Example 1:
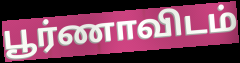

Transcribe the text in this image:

பூர்ணாவிடம்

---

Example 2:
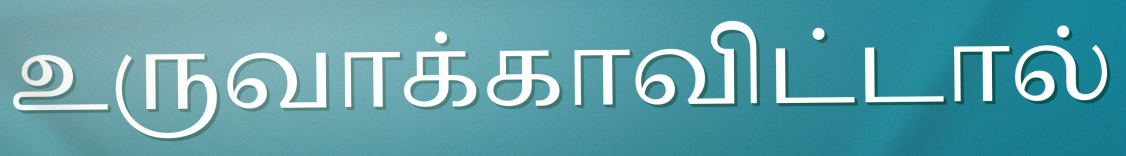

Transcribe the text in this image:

உருவாக்காவிட்டால்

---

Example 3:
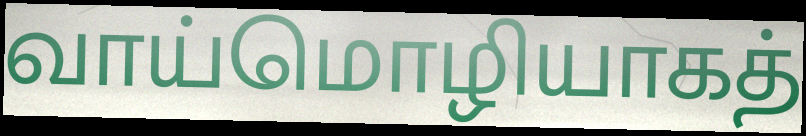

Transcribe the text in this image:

வாய்மொழியாகத்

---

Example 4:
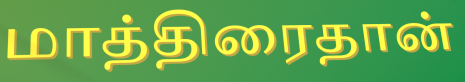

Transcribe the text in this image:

மாத்திரைதான்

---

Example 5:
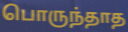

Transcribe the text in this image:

பொருந்தாத